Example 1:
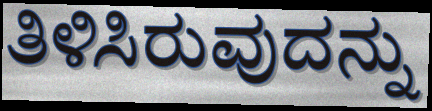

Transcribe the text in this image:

ತಿಳಿಸಿರುವುದನ್ನು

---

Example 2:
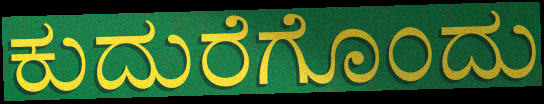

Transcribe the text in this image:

ಕುದುರೆಗೊಂದು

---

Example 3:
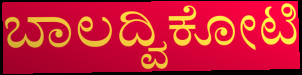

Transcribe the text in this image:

ಬಾಲದ್ವಿಕೋಟಿ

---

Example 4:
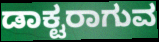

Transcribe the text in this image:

ಡಾಕ್ಟರಾಗುವ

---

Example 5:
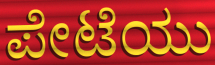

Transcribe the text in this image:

ಪೇಟೆಯು